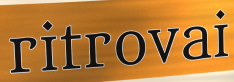
ritrovai